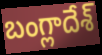
బంగ్లాదేశ్